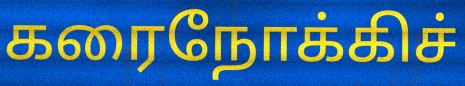
கரைநோக்கிச்